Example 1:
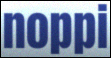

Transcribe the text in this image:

noppi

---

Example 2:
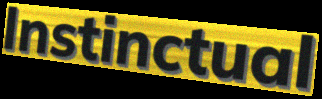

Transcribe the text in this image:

Instinctual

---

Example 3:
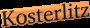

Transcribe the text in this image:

Kosterlitz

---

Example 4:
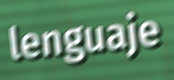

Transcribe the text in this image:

lenguaje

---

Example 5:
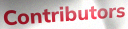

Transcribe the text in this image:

Contributors